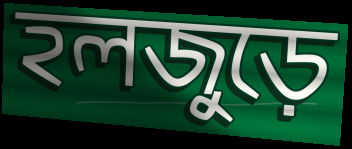
হলজুড়ে